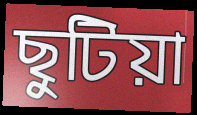
ছুটিয়া